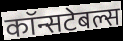
कॉन्सटेबल्स